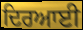
ਦਿਰਆਈ